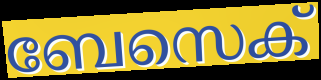
ബേസെക്